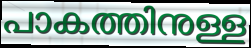
പാകത്തിനുള്ള